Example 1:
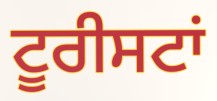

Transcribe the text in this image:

ਟੂਰੀਸਟਾਂ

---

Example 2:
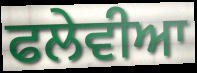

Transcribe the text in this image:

ਫਲੇਵੀਆ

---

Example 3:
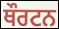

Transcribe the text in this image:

ਥੌਰਟਨ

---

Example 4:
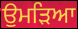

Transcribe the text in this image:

ਉਮੜਿਆ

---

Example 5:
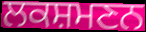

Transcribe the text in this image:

ਲਕਸ਼ਮਣਨ